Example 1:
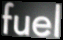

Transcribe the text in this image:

fuel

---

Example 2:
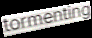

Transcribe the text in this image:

tormenting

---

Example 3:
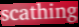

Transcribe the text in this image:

scathing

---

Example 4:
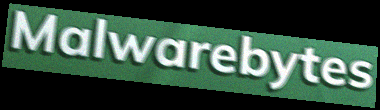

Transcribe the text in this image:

Malwarebytes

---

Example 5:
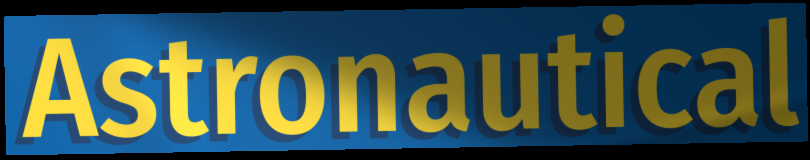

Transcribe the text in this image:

Astronautical